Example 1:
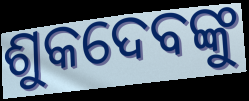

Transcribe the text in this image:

ଶୁକଦେବଙ୍କୁ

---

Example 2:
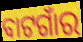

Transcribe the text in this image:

ବାଟଗାଁର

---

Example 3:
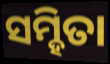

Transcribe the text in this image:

ସମ୍ହିତା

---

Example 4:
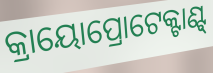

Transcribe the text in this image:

କ୍ରାୟୋପ୍ରୋଟେକ୍ଟାଣ୍ଟ୍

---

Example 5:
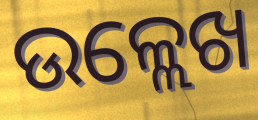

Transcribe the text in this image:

ଉଳ୍ଲେଖ